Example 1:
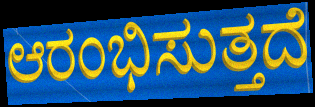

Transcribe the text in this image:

ಆರಂಭಿಸುತ್ತದೆ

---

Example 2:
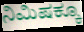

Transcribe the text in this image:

ನಿಮಿಷಕ್ಕೂ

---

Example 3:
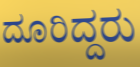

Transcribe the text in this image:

ದೂರಿದ್ದರು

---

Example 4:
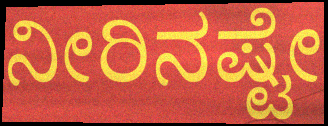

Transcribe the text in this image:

ನೀರಿನಷ್ಟೇ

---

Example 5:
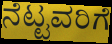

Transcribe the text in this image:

ನೆಟ್ಟವರಿಗೆ